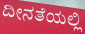
ದೀನತೆಯಲ್ಲಿ